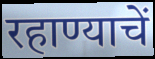
रहाण्याचें